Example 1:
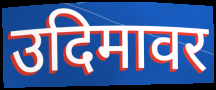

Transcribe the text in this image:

उदिमावर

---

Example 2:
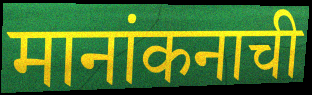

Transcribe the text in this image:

मानांकनाची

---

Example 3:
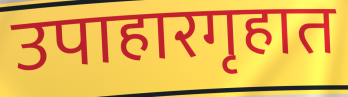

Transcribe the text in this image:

उपाहारगृहात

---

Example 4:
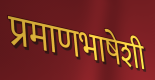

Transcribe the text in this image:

प्रमाणभाषेशी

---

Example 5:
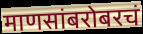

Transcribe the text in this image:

माणसांबरोबरचं